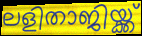
ലളിതാജിയ്ക്ക്